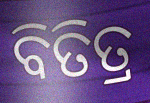
ବିତିତ୍ର